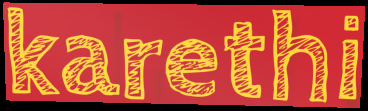
karethi